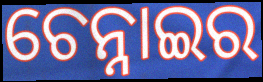
ଚେନ୍ନାଇର